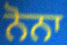
ਨੋਨਾ